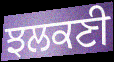
ਝਲਕਣੀ